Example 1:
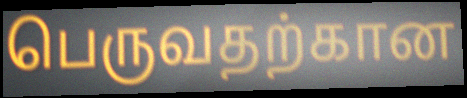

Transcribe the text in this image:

பெருவதற்கான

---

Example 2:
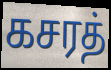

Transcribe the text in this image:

கசரத்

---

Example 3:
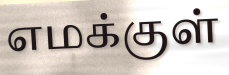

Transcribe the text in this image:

எமக்குள்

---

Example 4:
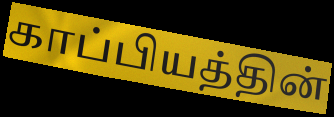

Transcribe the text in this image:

காப்பியத்தின்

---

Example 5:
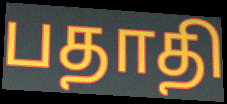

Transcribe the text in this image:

பதாதி